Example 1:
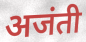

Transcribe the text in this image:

अजंती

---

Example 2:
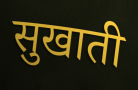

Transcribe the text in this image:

सुखाती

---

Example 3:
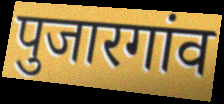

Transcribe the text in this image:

पुजारगांव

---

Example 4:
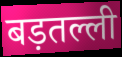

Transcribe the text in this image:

बड़तल्ली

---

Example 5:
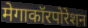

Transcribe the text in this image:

मेगाकॉरपोरेशन